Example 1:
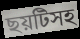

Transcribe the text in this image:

ছয়টিসহ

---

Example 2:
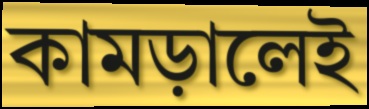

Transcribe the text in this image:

কামড়ালেই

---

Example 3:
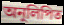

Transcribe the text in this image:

অনুলিপিত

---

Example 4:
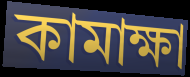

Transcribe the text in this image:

কামাক্ষা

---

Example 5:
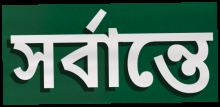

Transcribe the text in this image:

সর্বান্তে